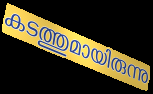
കടത്തുമായിരുന്നു